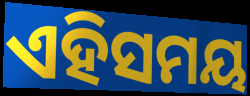
ଏହିସମୟ